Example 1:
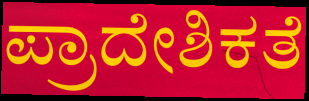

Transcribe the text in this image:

ಪ್ರಾದೇಶಿಕತೆ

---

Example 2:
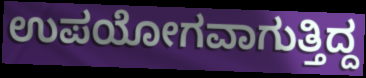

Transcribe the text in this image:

ಉಪಯೋಗವಾಗುತ್ತಿದ್ದ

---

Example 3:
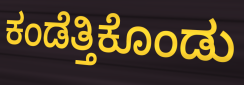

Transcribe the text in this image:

ಕಂಡೆತ್ತಿಕೊಂಡು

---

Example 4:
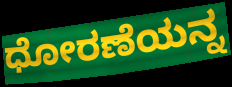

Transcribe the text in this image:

ಧೋರಣೆಯನ್ನ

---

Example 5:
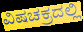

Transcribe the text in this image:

ವಿಷಚಕ್ರದಲ್ಲಿ